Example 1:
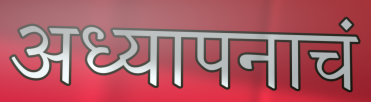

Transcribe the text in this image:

अध्यापनाचं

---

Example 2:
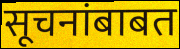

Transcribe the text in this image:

सूचनांबाबत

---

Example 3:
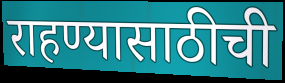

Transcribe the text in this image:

राहण्यासाठीची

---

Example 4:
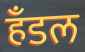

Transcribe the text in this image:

हॅंडल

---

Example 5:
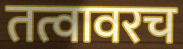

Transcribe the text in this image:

तत्वावरच